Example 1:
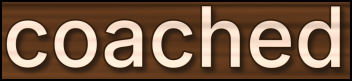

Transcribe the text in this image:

coached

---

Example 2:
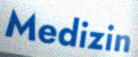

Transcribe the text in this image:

Medizin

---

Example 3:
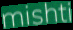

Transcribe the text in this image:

mishti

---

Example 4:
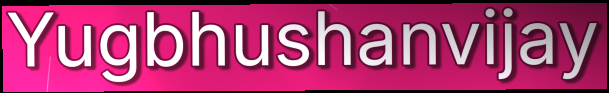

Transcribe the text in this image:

Yugbhushanvijay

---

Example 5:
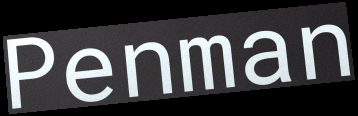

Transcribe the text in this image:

Penman